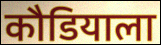
कौडियाला